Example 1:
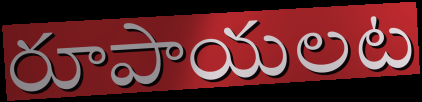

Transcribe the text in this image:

రూపాయలట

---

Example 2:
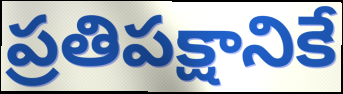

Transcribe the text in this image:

ప్రతిపక్షానికే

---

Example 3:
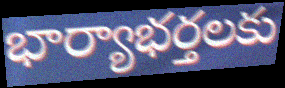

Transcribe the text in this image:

భార్యాభర్తలకు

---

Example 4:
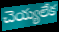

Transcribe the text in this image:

చెయ్యలేక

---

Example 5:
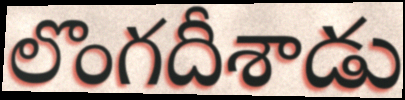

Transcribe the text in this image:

లొంగదీశాడు